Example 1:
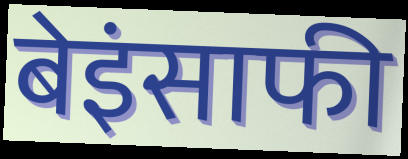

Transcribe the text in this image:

बेइंसाफी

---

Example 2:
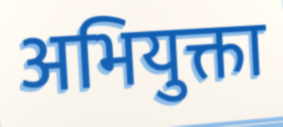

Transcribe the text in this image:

अभियुक्ता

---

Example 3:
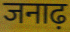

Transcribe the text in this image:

जनाढ़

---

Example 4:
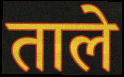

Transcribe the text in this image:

ताले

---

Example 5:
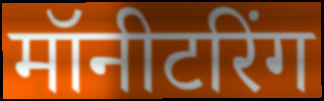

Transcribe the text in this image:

मॉनीटरिंग